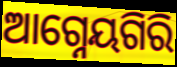
ଆଗ୍ନେୟଗିରି